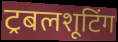
ट्रबलशूटिंग